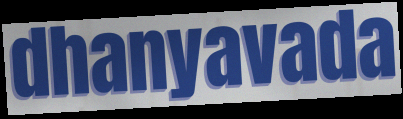
dhanyavada